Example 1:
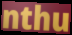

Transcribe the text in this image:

nthu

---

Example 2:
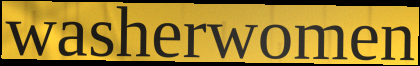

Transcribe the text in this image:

washerwomen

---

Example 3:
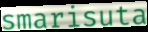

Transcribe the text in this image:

smarisuta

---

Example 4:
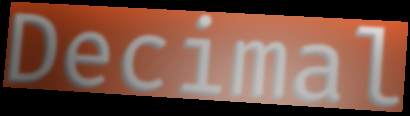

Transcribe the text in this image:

Decimal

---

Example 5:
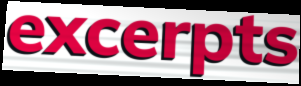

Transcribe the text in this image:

excerpts